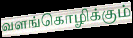
வளங்கொழிக்கும்